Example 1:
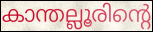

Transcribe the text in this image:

കാന്തല്ലൂരിന്റെ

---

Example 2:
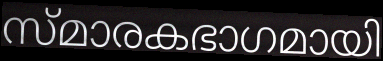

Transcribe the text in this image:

സ്മാരകഭാഗമായി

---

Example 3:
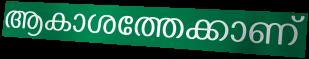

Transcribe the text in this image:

ആകാശത്തേക്കാണ്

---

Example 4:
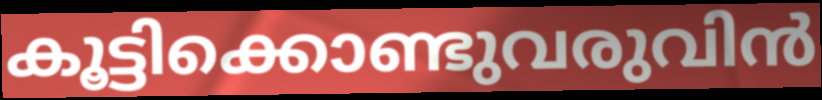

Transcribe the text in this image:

കൂട്ടിക്കൊണ്ടുവരുവിൻ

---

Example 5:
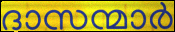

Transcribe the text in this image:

ദാസന്മാർ